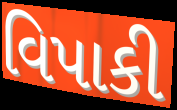
વિપાકી